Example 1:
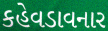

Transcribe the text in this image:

કહેવડાવનાર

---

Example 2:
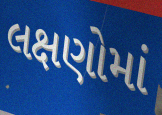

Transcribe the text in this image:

લક્ષણોમાં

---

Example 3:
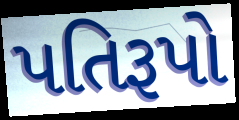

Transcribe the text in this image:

પતિરૂપો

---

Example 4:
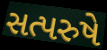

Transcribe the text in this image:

સત્પરુષે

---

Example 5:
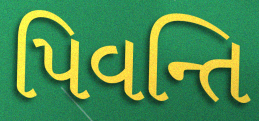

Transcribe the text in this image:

પિવન્તિ